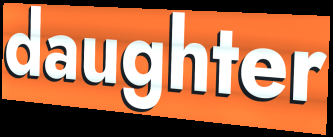
daughter